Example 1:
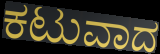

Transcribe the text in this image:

ಕಟುವಾದ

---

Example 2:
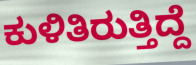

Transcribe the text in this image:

ಕುಳಿತಿರುತ್ತಿದ್ದೆ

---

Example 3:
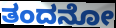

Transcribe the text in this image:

ತಂದನೋ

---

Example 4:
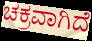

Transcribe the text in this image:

ಚಕ್ರವಾಗಿದೆ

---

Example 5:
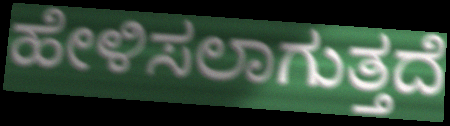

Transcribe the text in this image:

ಹೇಳಿಸಲಾಗುತ್ತದೆ